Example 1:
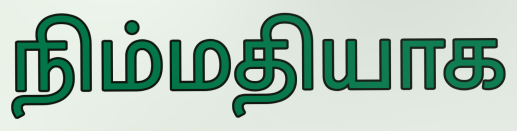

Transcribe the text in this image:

நிம்மதியாக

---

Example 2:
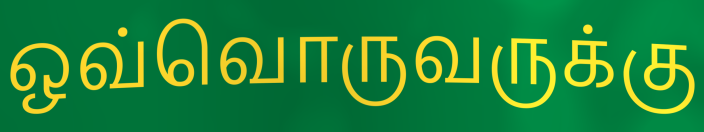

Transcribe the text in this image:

ஒவ்வொருவருக்கு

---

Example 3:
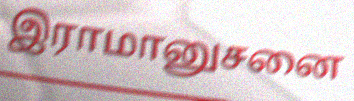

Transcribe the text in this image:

இராமானுசனை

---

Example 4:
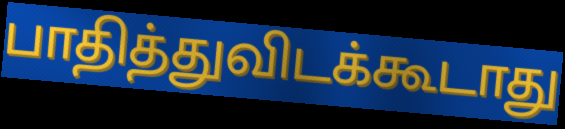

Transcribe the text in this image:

பாதித்துவிடக்கூடாது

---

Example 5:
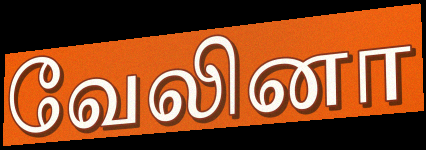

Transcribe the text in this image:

வேலினா